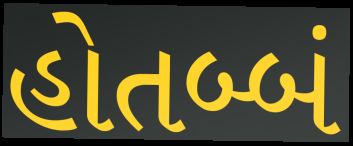
હોતબ્બં